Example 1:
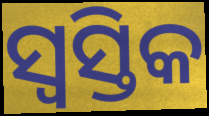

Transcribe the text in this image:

ସ୍ୱସ୍ତିକ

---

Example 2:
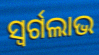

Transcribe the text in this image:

ସ୍ୱର୍ଗଲାଭ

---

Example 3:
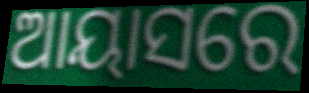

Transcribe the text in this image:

ଆୟାସରେ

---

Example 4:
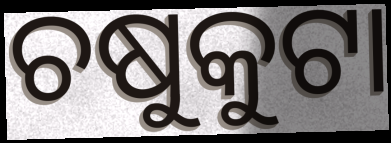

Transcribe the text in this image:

ଚଷୁକୁଟା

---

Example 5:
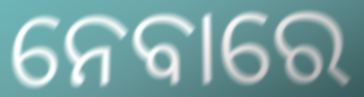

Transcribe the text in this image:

ନେବାରେ